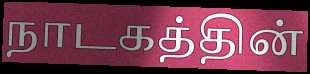
நாடகத்தின்